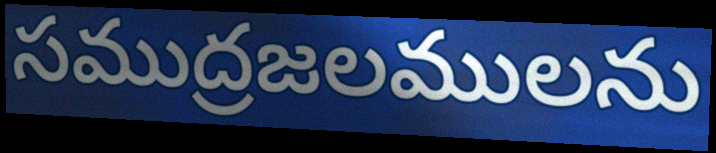
సముద్రజలములను